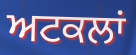
ਅਟਕਲਾਂ